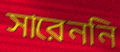
সারেননি